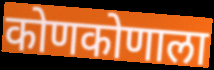
कोणकोणाला